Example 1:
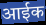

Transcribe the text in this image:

आईक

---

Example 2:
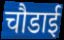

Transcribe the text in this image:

चौडाई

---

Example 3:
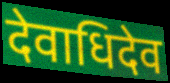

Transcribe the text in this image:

देवाधिदेव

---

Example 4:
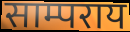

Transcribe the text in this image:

साम्पराय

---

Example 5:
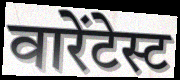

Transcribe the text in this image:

वारेंटेस्ट